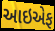
આઇએફ